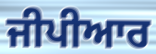
ਜੀਪੀਆਰ